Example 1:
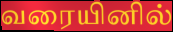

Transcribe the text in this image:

வரையினில்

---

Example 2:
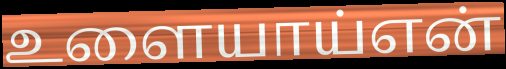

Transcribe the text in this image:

உளையாய்என்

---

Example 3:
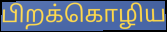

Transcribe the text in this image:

பிறக்கொழிய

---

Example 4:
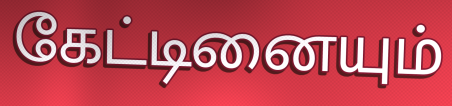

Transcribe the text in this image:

கேட்டினையும்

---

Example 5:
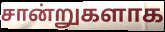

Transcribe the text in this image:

சான்றுகளாக